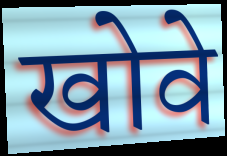
खोवे